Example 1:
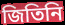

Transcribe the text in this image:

জিতিনি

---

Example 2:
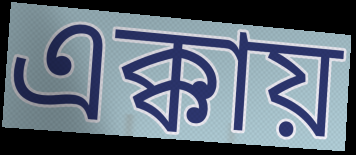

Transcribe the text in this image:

এক্কায়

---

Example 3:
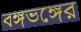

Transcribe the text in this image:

বঙ্গভঙ্গের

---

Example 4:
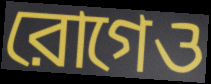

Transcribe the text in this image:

রোগেও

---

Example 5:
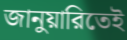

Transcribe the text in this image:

জানুয়ারিতেই